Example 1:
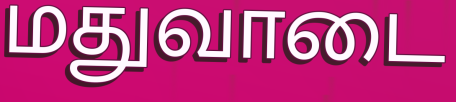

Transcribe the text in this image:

மதுவாடை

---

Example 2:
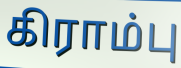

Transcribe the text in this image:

கிராம்பு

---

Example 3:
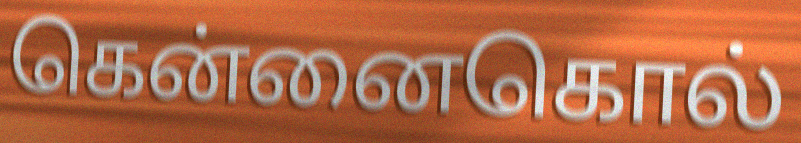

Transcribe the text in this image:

கென்னைகொல்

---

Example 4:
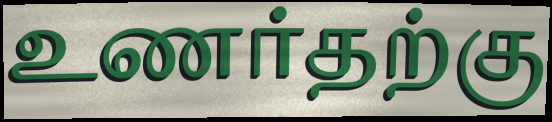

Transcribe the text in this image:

உணர்தற்கு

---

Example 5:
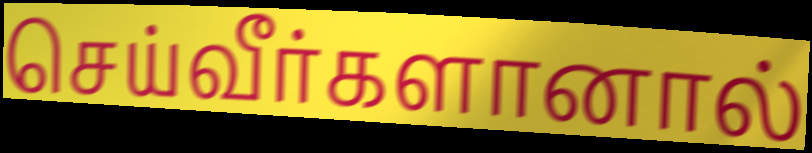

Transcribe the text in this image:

செய்வீர்களானால்